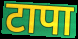
टापा